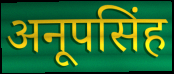
अनूपसिंह